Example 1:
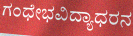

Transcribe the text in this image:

ಗಂಧೇಭವಿದ್ಯಾಧರನ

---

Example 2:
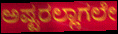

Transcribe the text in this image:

ಅಷ್ಟರಲ್ಲಾಗಲೇ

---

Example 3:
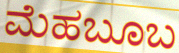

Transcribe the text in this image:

ಮೆಹಬೂಬ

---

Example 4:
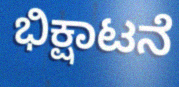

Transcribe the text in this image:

ಭಿಕ್ಷಾಟನೆ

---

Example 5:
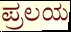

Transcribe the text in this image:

ಪ್ರಲಯ